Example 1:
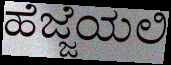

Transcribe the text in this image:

ಹೆಜ್ಜೆಯಲಿ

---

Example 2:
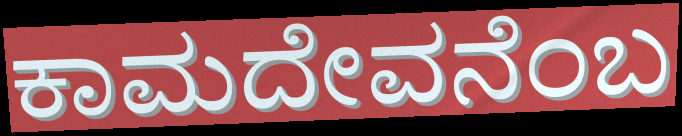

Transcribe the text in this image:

ಕಾಮದೇವನೆಂಬ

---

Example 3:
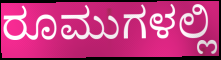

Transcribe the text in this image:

ರೂಮುಗಳಲ್ಲಿ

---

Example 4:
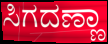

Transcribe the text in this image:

ಸಿಗದಣ್ಣಾ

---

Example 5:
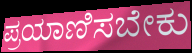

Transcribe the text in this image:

ಪ್ರಯಾಣಿಸಬೇಕು